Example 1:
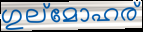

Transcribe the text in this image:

ഗുല്മോഹര്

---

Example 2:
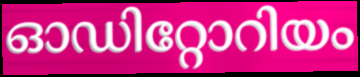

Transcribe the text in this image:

ഓഡിറ്റോറിയം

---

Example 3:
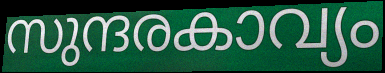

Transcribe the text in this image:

സുന്ദരകാവ്യം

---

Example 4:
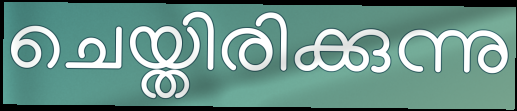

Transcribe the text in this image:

ചെയ്തിരിക്കുന്നു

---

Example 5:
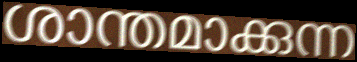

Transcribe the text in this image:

ശാന്തമാക്കുന്ന